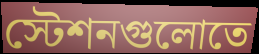
স্টেশনগুলোতে